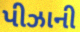
પીઝાની